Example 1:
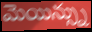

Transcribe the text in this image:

మెయిన్స్ను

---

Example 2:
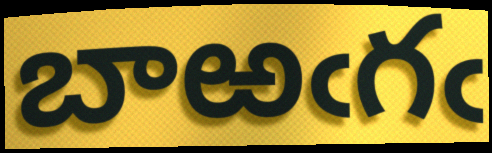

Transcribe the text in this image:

బాఱఁగఁ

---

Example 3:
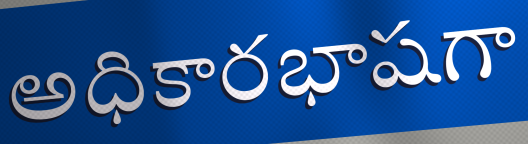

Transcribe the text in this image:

అధికారభాషగా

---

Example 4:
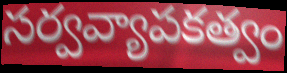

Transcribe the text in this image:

సర్వవ్యాపకత్వం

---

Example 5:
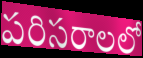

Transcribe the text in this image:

పరిసరాలలో